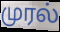
முரல்